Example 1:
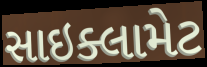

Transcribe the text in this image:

સાઇક્લામેટ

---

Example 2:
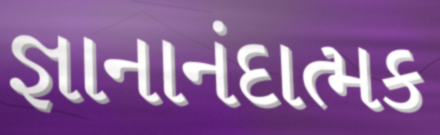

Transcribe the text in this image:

જ્ઞાનાનંદાત્મક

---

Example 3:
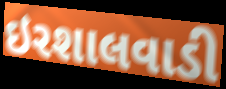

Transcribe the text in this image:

ઇરશાલવાડી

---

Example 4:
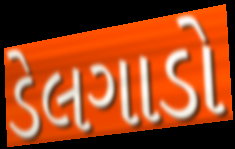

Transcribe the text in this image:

ડેલગાડો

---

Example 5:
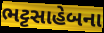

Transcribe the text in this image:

ભટ્ટસાહેબના